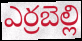
ఎర్రబెల్లి